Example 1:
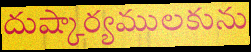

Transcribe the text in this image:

దుష్కార్యములకును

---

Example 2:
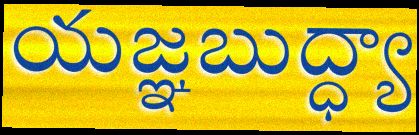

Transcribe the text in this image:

యజ్ఞబుద్ధ్యా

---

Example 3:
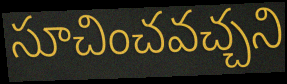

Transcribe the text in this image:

సూచించవచ్చని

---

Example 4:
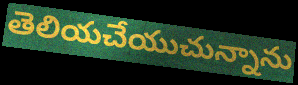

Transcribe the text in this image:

తెలియచేయుచున్నాను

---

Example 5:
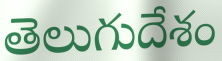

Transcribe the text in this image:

తెలుగుదేశం